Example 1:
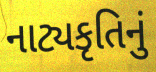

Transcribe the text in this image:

નાટ્યકૃતિનું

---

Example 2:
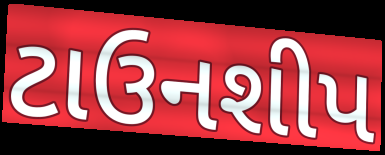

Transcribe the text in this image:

ટાઉનશીપ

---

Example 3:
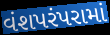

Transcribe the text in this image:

વંશપરંપરામાં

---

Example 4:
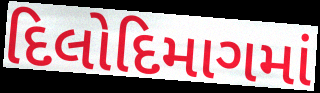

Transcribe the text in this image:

દિલોદિમાગમાં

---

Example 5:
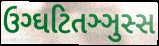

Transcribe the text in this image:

ઉગ્ઘટિતઞ્ઞુસ્સ